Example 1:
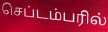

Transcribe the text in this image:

செப்டம்பரில்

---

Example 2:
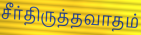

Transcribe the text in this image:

சீர்திருத்தவாதம்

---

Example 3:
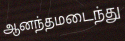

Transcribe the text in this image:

ஆனந்தமடைந்து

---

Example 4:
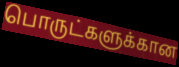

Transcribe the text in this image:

பொருட்களுக்கான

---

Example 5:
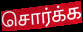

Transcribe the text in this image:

சொர்க்க